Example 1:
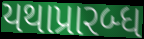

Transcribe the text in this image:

યથાપ્રારબ્ધ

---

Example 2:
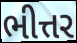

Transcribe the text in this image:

ભીત્તર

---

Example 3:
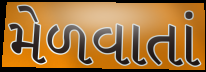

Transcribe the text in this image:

મેળવાતાં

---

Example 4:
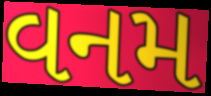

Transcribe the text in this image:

વનમ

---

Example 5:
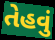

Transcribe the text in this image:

તેહવું